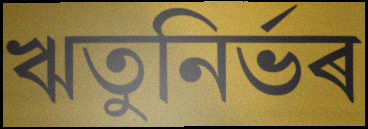
ঋতুনিৰ্ভৰ